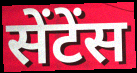
सेंटेंस